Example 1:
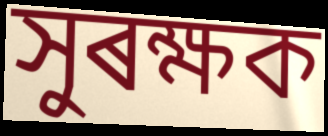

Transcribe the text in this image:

সুৰক্ষক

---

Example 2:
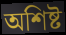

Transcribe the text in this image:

অশিষ্ট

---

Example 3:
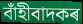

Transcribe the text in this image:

বাঁহীবাদকৰ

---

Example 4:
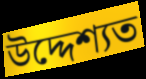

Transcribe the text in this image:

উদ্দেশ্যত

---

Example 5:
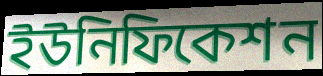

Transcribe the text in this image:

ইউনিফিকেশন